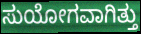
ಸುಯೋಗವಾಗಿತ್ತು